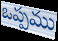
ఒప్పము